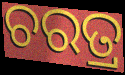
ଚରତ୍ର